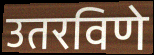
उतरविणे